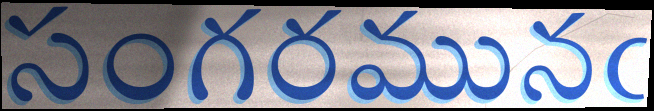
సంగరమునఁ